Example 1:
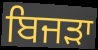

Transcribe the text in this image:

ਬਿਜੜਾ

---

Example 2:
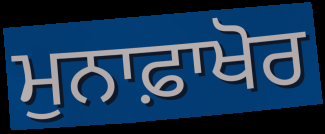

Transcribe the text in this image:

ਮੁਨਾਫ਼ਾਖੋਰ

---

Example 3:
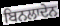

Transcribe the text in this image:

ਬਿਨਲਾਦੇਨ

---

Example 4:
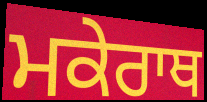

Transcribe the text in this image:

ਮਕੇਰਾਥ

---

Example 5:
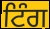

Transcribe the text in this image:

ਟਿੰਗ